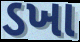
ડખા